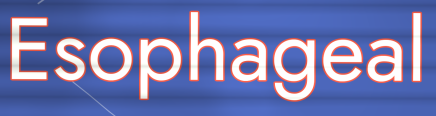
Esophageal